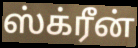
ஸ்க்ரீன்